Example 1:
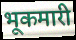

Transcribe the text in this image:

भूकमारी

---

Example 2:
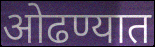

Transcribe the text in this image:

ओढण्यात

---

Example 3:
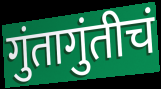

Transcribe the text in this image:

गुंतागुंतीचं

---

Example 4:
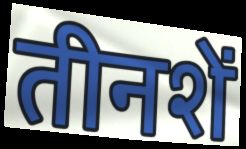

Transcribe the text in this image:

तीनशें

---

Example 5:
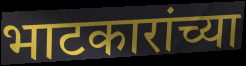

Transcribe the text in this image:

भाटकारांच्या